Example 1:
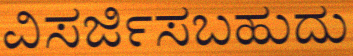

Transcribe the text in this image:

ವಿಸರ್ಜಿಸಬಹುದು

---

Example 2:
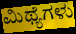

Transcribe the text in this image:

ಮಿಥ್ಯೆಗಳು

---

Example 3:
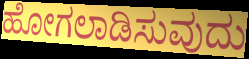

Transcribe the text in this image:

ಹೋಗಲಾಡಿಸುವುದು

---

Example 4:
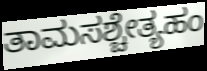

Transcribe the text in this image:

ತಾಮಸಶ್ಚೇತ್ಯಹಂ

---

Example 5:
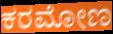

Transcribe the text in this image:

ಕರಮೋಣ